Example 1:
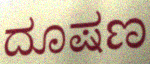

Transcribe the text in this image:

ದೂಷಣ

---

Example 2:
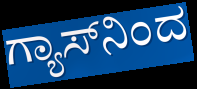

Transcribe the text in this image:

ಗ್ಯಾಸ್‌ನಿಂದ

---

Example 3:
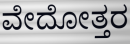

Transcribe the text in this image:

ವೇದೋತ್ತರ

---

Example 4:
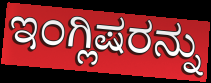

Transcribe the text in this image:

ಇಂಗ್ಲಿಷರನ್ನು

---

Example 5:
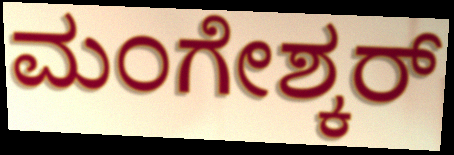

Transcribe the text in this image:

ಮಂಗೇಶ್ಕರ್